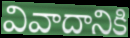
వివాదానికి